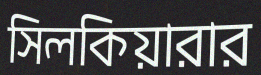
সিলকিয়ারার